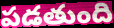
పడతుంది